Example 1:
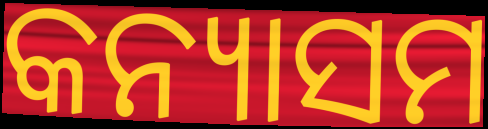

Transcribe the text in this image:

କନ୍ୟାସମ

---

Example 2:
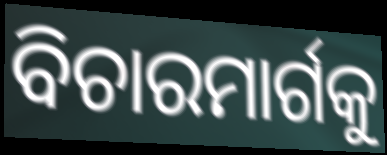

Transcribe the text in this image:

ବିଚାରମାର୍ଗକୁ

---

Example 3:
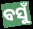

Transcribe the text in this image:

ବସୁଁ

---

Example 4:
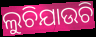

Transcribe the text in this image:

ଲୁଚିଯାଉଚି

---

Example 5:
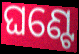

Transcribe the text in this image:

ଘଣ୍ଟେ